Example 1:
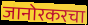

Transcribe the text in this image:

जानोरकरचा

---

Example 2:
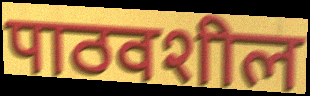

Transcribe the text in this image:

पाठवशील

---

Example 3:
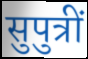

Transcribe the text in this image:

सुपुत्रीं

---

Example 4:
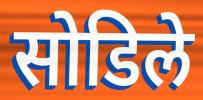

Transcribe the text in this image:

सोडिले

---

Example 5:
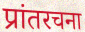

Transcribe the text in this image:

प्रांतरचना